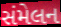
સંમેલન